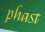
phast